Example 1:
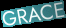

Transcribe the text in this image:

GRACE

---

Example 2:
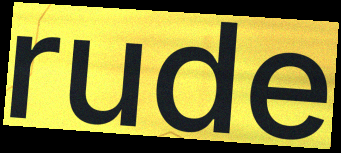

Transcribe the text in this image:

rude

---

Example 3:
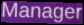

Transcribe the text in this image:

Manager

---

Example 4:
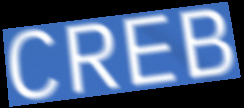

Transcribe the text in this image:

CREB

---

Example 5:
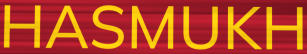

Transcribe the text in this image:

HASMUKH